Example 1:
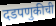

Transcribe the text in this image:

दडपणुकीची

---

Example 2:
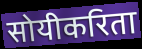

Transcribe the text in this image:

सोयीकरिता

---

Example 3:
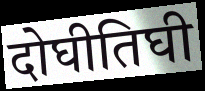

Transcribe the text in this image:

दोघीतिघी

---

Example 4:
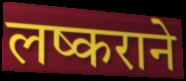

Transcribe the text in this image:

लष्कराने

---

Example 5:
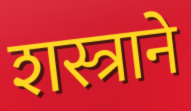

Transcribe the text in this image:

शस्त्राने